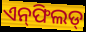
ଏନ୍‌ଫିଲଡ୍